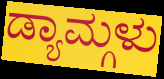
ಡ್ಯಾಮ್ಗಳು